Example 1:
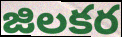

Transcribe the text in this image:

జిలకర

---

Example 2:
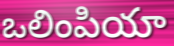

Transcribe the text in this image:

ఒలింపియా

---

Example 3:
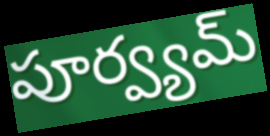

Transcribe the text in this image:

పూర్వ్యమ్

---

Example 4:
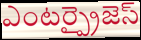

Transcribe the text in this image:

ఎంటర్ప్రైజెస్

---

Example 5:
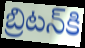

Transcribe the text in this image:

బ్రిటన్‌కి